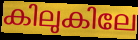
കിലുകിലേ